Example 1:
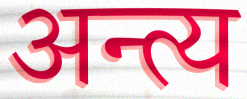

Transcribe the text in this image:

अन्त्य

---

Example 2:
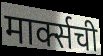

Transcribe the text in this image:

मार्क्सची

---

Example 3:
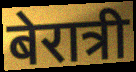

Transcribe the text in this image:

बेरात्री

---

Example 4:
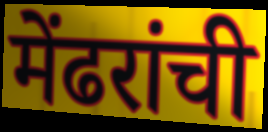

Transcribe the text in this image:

मेंढरांची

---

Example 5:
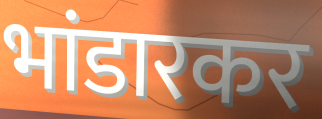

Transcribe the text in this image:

भांडारकर